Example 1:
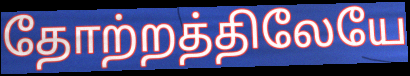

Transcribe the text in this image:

தோற்றத்திலேயே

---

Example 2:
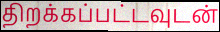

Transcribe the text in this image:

திறக்கப்பட்டவுடன்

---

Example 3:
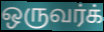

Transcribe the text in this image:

ஒருவர்க்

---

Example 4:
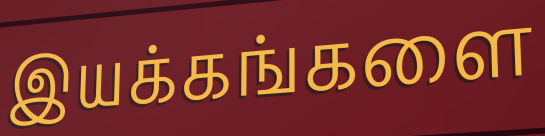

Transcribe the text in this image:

இயக்கங்களை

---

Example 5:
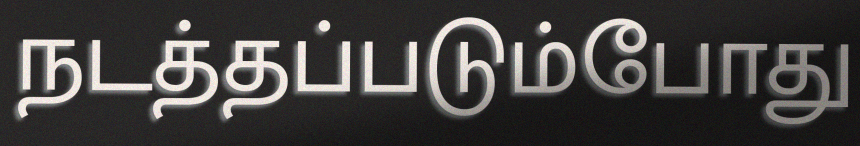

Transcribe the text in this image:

நடத்தப்படும்போது